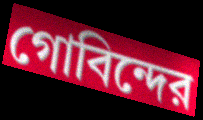
গোবিন্দের